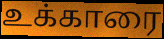
உக்காரை